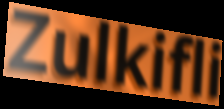
Zulkifli